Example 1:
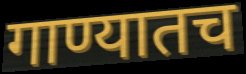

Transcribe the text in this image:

गाण्यातच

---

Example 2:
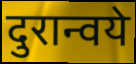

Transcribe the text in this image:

दुरान्वये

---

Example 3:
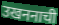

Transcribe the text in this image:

उखननाची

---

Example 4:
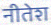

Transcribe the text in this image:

नीतेश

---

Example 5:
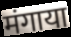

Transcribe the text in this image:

मंगाया